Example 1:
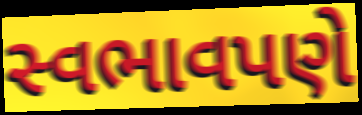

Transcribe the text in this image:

સ્વભાવપણે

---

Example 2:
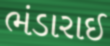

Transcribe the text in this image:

ભંડારાઈ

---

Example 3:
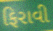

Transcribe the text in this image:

ફિરાવી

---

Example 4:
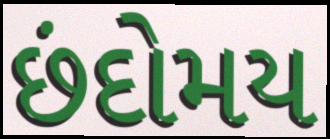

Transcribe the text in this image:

છંદોમય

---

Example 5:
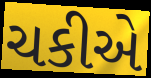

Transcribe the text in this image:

ચકીએ